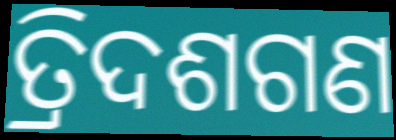
ତ୍ରିଦଶଗଣ